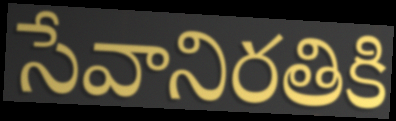
సేవానిరతికి